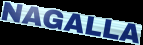
NAGALLA